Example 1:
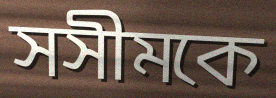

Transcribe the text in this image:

সসীমকে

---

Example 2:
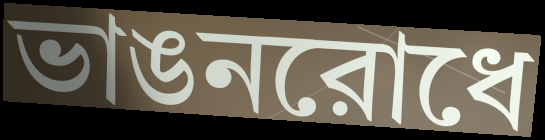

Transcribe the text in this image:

ভাঙনরোধে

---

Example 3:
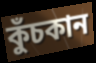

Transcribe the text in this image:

কুঁচকান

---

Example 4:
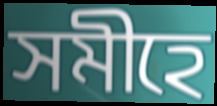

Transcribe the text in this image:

সমীহে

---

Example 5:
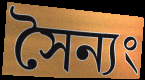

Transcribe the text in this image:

সৈন্যং